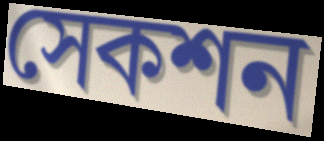
সেকশন